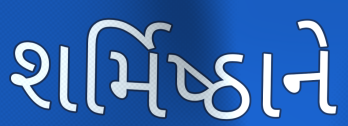
શર્મિષ્ઠાને